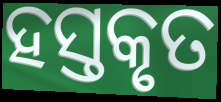
ହସ୍ତକୃତ